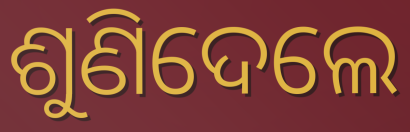
ଶୁଣିଦେଲେ